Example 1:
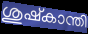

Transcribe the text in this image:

ശുഷ്കാന്തി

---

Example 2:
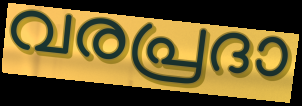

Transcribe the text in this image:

വരപ്രദാ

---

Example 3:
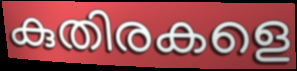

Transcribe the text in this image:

കുതിരകളെ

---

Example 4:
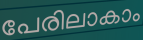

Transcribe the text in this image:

പേരിലാകാം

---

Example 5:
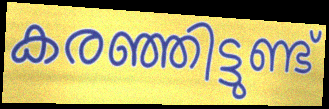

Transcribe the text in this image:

കരഞ്ഞിട്ടുണ്ട്